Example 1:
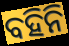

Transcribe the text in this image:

ବହିନି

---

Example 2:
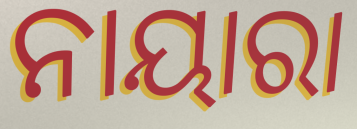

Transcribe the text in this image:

ନାୟାରା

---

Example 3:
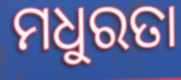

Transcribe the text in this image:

ମଧୁରତା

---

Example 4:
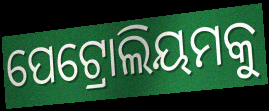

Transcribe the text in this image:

ପେଟ୍ରୋଲିୟମକୁ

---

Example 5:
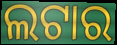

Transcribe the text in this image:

ଲଟାର